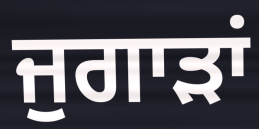
ਜੁਗਾੜਾਂ